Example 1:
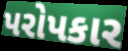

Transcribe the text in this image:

પરોપકાર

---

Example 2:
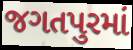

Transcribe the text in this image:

જગતપુરમાં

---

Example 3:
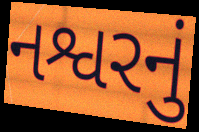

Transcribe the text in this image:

નશ્વરનું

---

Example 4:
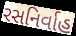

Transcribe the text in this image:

રસનિર્વાહ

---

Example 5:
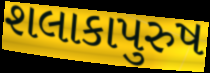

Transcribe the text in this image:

શલાકાપુરુષ